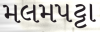
મલમપટ્ટા